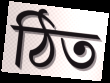
ঠিত